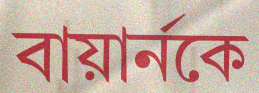
বায়ার্নকে